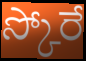
స్కోరే